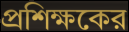
প্রশিক্ষকের